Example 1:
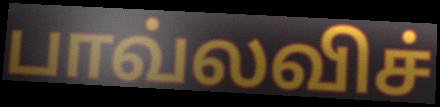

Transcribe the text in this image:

பாவ்லவிச்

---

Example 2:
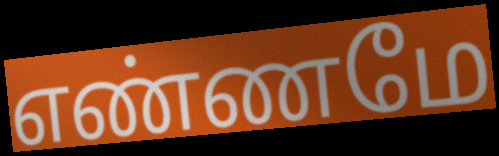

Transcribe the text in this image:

எண்ணமே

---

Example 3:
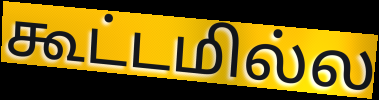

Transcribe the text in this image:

கூட்டமில்ல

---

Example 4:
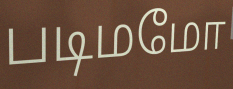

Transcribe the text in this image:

படிமமோ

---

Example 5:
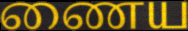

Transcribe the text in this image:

ணைய